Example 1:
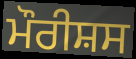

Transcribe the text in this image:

ਮੌਰੀਸ਼ਸ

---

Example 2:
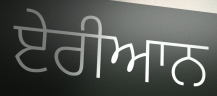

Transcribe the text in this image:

ਏਰੀਆਨ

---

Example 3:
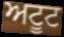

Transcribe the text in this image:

ਅਟੂਟ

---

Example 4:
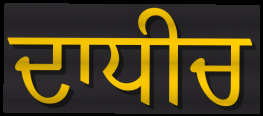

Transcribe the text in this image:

ਦਾਧੀਚ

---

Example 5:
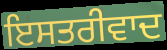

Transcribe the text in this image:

ਇਸਤਰੀਵਾਦ